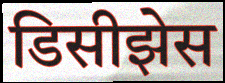
डिसीझेस